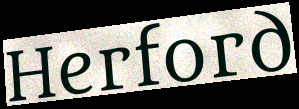
Herford